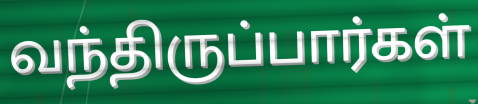
வந்திருப்பார்கள்